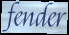
fender